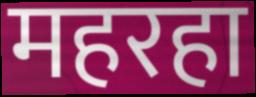
महरहा